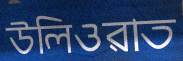
উলিওৱাত